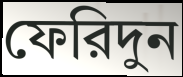
ফেরিদুন